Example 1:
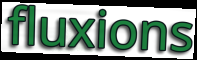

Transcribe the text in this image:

fluxions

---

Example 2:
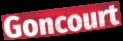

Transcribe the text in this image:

Goncourt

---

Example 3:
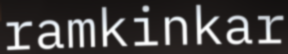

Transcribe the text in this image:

ramkinkar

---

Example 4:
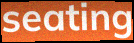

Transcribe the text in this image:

seating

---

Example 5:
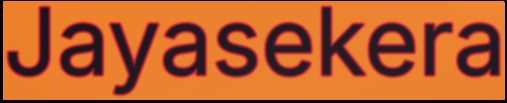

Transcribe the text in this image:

Jayasekera